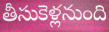
తీసుకెళ్లనుంది